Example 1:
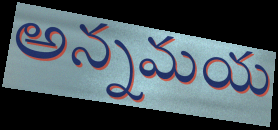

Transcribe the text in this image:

అన్నమయ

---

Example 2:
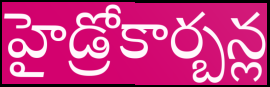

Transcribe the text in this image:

హైడ్రోకార్బన్ల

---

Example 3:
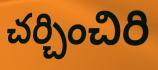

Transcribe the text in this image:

చర్చించిరి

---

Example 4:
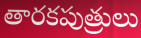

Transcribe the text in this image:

తారకపుత్రులు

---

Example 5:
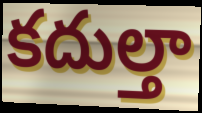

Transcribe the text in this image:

కదుల్తా